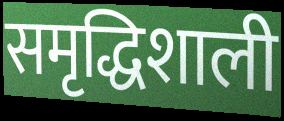
समृद्धिशाली